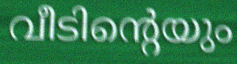
വീടിന്റെയും